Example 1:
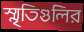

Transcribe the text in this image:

স্মৃতিগুলির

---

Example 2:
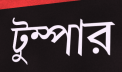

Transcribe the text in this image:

টুম্পার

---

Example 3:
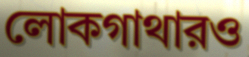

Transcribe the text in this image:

লোকগাথারও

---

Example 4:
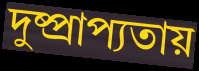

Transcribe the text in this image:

দুষ্প্রাপ্যতায়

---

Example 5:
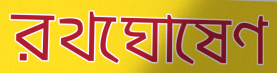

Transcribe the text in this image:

রথঘোষেণ